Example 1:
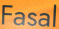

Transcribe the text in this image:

Fasal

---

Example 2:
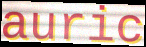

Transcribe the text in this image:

auric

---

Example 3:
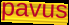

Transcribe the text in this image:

pavus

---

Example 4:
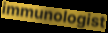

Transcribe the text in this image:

immunologist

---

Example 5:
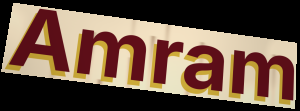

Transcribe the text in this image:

Amram